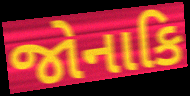
જોનાકિ